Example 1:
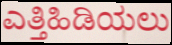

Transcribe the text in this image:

ಎತ್ತಿಹಿಡಿಯಲು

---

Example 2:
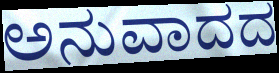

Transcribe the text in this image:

ಅನುವಾದದ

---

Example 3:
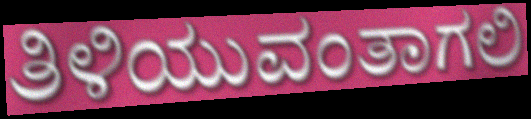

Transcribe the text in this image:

ತಿಳಿಯುವಂತಾಗಲಿ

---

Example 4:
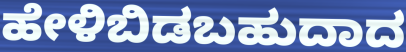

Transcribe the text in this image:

ಹೇಳಿಬಿಡಬಹುದಾದ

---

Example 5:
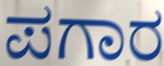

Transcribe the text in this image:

ಪಗಾರ